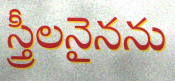
స్త్రీలనైనను